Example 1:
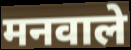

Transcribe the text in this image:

मनवाले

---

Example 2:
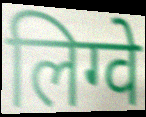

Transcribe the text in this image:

लिग्वे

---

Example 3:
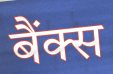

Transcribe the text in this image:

बैंक्‍स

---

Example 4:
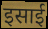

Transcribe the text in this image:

इसाई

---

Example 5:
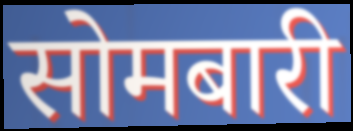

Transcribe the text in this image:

सोमबारी